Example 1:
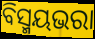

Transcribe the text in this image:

ବିସ୍ମୟଭରା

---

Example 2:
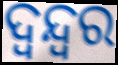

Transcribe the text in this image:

ଦ୍ଵନ୍ଦ୍ୱର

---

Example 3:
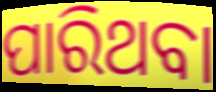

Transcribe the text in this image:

ପାରିଥବା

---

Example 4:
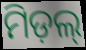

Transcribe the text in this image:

ମିଡ଼ଲ୍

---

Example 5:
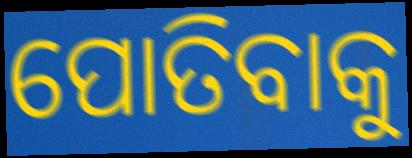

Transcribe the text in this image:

ପୋତିବାକୁ